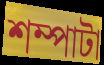
শম্পাটা